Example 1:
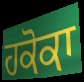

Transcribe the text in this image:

ਹਕੋਕਾ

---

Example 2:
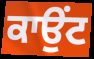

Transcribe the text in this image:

ਕਾਉਂਟ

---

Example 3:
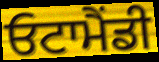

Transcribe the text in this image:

ਓਟਾਮੈਂਡੀ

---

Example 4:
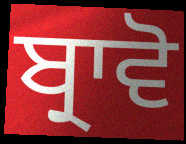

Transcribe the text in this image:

ਬ੍ਰਾਵੋ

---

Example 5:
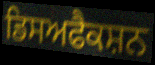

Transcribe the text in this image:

ਡਿਸਅਫੈਕਸ਼ਨ